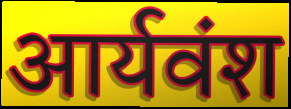
आर्यवंश